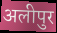
अलीपुर